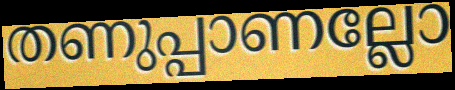
തണുപ്പാണല്ലോ